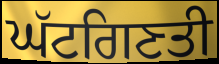
ਘੱਟਗਿਣਤੀ